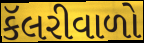
કૅલરીવાળો